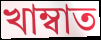
খাম্বাত